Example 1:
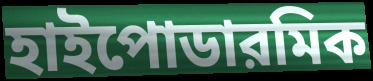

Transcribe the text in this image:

হাইপোডারমিক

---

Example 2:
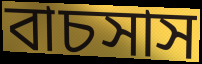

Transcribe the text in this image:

বাচসাস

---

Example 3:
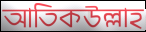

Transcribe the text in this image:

আতিকউল্লাহ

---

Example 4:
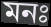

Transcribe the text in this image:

মনঃ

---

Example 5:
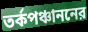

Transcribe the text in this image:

তর্কপঞ্চাননের